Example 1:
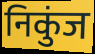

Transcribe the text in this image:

निकुंज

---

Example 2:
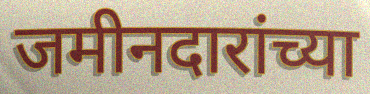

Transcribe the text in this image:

जमीनदारांच्या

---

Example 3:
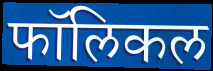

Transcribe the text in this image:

फॉलिकल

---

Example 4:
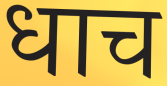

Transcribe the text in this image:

धाच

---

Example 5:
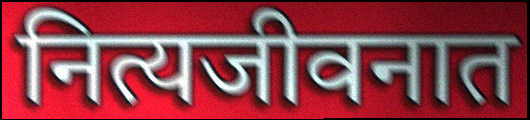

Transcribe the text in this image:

नित्यजीवनात